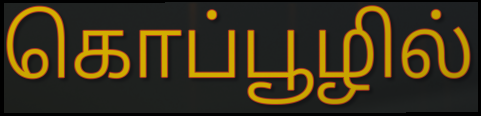
கொப்பூழில்